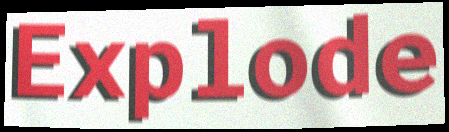
Explode